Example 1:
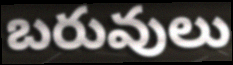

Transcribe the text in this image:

బరువులు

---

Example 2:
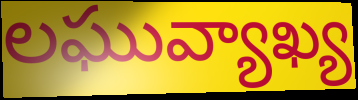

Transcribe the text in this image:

లఘువ్యాఖ్య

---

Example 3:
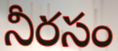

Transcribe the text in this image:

నీరసం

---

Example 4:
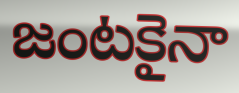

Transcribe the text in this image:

జంటకైనా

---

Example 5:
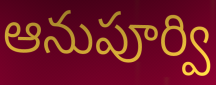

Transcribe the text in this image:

ఆనుపూర్వి